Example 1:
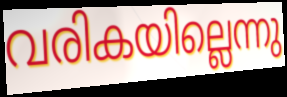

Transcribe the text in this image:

വരികയില്ലെന്നു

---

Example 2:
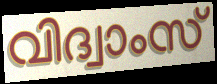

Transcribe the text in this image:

വിദ്വാംസ്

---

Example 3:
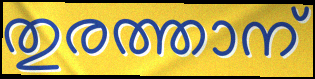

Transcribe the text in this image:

തുരത്താന്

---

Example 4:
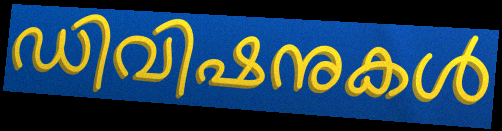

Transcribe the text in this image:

ഡിവിഷനുകൾ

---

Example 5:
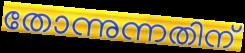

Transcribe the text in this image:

തോന്നുന്നതിന്